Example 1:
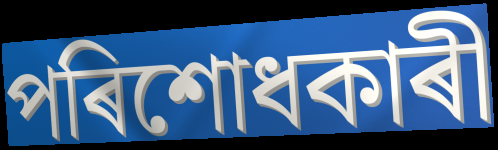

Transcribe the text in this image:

পৰিশোধকাৰী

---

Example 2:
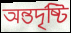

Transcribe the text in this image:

অন্তৰ্দৃষ্টি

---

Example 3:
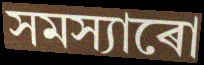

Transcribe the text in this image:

সমস্যাৰো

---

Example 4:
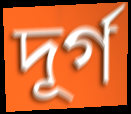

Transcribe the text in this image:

দূৰ্গ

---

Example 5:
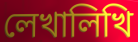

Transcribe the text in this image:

লেখালিখি